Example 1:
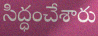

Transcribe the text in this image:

సిద్ధంచేశారు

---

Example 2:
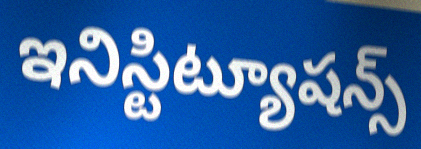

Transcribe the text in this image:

ఇనిస్టిట్యూషన్స్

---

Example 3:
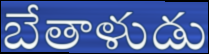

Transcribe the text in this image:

బేతాళుడు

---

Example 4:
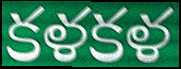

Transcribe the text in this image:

కళకళ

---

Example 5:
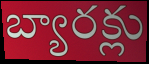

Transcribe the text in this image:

బ్యారక్లు